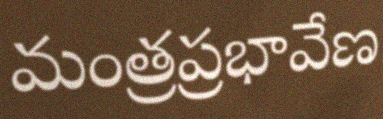
మంత్రప్రభావేణ